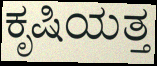
ಕೃಷಿಯತ್ತ